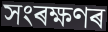
সংৰক্ষণৰ